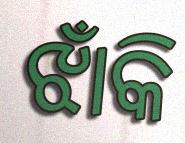
ଝାଁକି